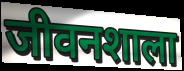
जीवनशाला